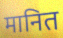
मानित